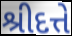
શ્રીદત્તે